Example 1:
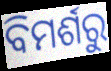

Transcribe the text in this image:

ବିମର୍ଶରୁ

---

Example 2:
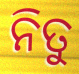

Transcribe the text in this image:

ନିତୁ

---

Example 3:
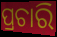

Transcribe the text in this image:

ପ୍ରଚାରି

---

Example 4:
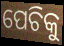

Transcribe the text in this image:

ପେଚିକୁ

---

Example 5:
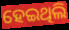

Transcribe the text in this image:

ହେଇଥିଲି